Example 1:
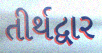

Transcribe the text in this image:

તીર્થદ્વાર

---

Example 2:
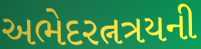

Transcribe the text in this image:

અભેદરત્નત્રયની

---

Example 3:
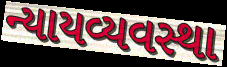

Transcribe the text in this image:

ન્યાયવ્યવસ્થા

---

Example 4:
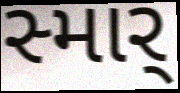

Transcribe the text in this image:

સ્માર્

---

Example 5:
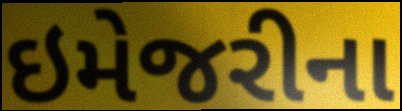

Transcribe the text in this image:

ઇમેજરીના